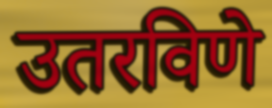
उतरविणे